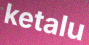
ketalu